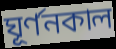
ঘূর্ণনকাল